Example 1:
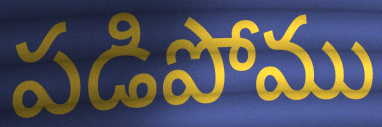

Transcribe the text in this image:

పడిపోము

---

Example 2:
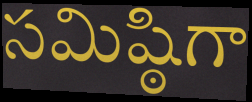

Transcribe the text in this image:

సమిష్ఠిగా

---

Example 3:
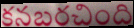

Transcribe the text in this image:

కనబరచింది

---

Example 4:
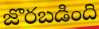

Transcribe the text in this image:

జొరబడింది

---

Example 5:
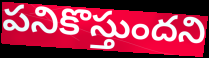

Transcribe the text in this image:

పనికొస్తుందని